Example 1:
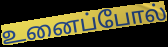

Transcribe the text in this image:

உனைப்போல்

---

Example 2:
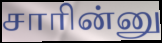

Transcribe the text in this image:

சாரின்னு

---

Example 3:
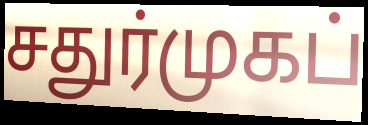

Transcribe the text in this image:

சதுர்முகப்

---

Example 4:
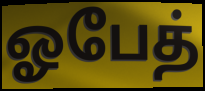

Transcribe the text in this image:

ஓபேத்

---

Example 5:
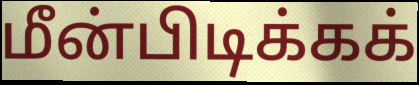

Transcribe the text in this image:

மீன்பிடிக்கக்